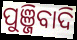
ପୁଞ୍ଜିବାଦି